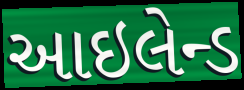
આઇલેન્ડ